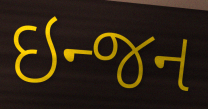
ઇન્જન